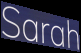
Sarah